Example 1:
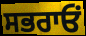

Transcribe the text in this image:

ਸਭਰਾਓਂ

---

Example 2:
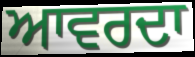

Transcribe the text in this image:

ਆਵਰਦਾ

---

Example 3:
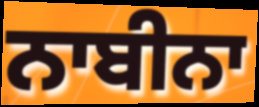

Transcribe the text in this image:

ਨਾਬੀਨਾ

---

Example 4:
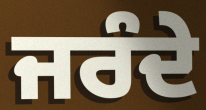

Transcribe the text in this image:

ਜਰੰਦੇ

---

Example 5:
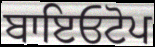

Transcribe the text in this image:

ਬਾਇਓਟੋਪ